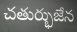
చతుర్భుజేన